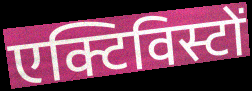
एक्टिविस्टों